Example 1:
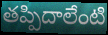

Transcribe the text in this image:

తప్పిదాలేంటి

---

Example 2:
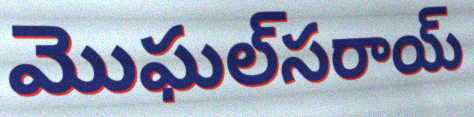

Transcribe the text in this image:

మొఘల్‌సరాయ్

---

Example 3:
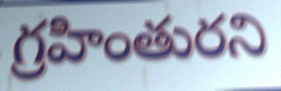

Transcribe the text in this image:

గ్రహింతురని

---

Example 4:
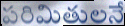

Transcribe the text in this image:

పరిమితులనే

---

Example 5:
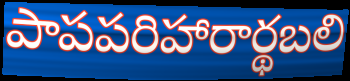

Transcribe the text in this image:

పాపపరిహారార్థబలి